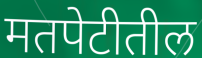
मतपेटीतील